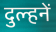
दुल्हनें